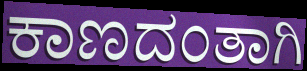
ಕಾಣದಂತಾಗಿ